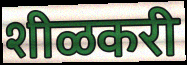
शीळकरी